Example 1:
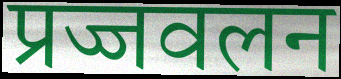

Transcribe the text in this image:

प्रज्जवलन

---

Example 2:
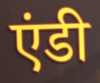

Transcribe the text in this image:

एंडी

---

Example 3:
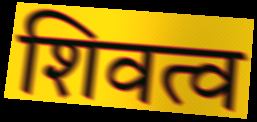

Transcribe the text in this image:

शिवत्व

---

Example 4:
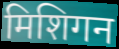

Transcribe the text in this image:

मिशिगन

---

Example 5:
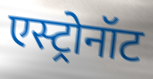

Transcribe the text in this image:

एस्‍ट्रोनॉट